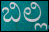
ಬಿಲ್ಲಿ